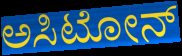
ಅಸಿಟೋನ್